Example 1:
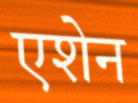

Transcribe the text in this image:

एशेन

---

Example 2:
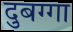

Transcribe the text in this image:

दुबग्गा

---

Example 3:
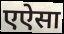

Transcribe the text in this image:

एऐसा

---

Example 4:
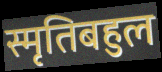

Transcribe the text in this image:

स्मृतिबहुल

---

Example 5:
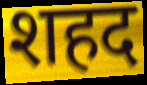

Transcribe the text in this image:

शहद